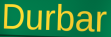
Durbar